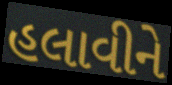
હલાવીને